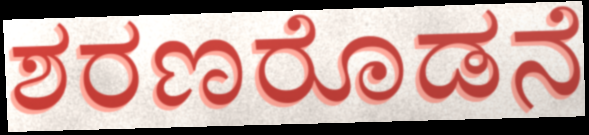
ಶರಣರೊಡನೆ